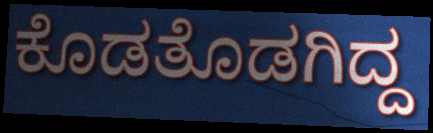
ಕೊಡತೊಡಗಿದ್ದ